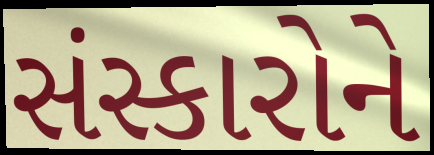
સંસ્કારોને